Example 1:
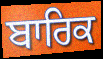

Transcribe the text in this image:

ਬਾਰਿਕ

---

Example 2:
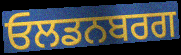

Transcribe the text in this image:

ਓਲਡਨਬਰਗ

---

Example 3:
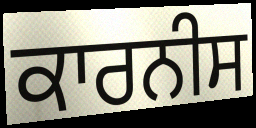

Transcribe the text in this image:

ਕਾਰਨੀਸ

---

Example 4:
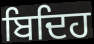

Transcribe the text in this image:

ਬਿਦਿਹ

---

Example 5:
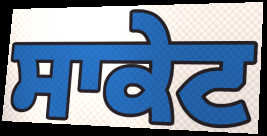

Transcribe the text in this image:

ਸਾਕੇਟ